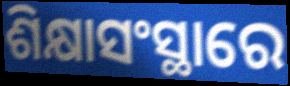
ଶିକ୍ଷାସଂସ୍ଥାରେ